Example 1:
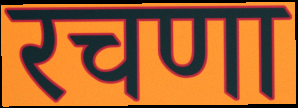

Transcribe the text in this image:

रचणा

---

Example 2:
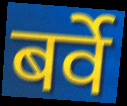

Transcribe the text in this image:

बर्वे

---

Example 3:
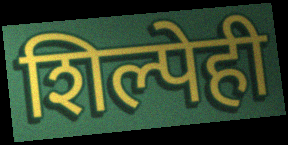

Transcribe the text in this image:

शिल्पेही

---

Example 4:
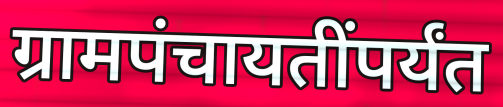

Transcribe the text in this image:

ग्रामपंचायतींपर्यंत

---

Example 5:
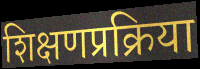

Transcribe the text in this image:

शिक्षणप्रक्रिया